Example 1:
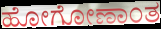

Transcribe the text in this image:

ಹೋಗೋಣಾಂತ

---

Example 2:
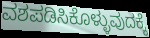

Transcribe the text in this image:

ವಶಪಡಿಸಿಕೊಳ್ಳುವುದಕ್ಕೆ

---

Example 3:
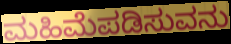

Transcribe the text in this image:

ಮಹಿಮೆಪಡಿಸುವನು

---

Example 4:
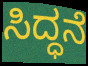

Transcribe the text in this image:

ಸಿದ್ಧನೆ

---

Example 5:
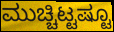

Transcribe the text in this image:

ಮುಚ್ಚಿಟ್ಟಷ್ಟೂ